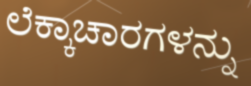
ಲೆಕ್ಕಾಚಾರಗಳನ್ನು